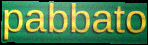
pabbato